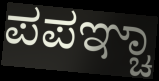
ಪಪಞ್ಚಾ